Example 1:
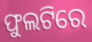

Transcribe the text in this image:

ଫୁଲଟିରେ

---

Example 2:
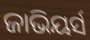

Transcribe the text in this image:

ଜାଭିୟର୍ସ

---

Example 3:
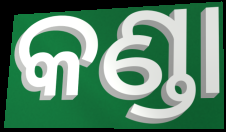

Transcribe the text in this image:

କଣ୍ଡା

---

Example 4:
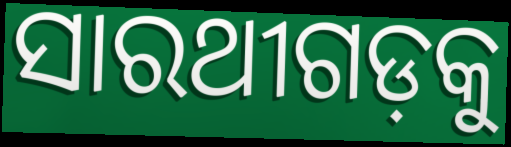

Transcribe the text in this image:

ସାରଥୀଗଡ଼କୁ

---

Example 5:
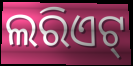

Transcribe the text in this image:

ଲରିଏଟ୍